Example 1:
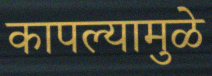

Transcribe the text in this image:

कापल्यामुळे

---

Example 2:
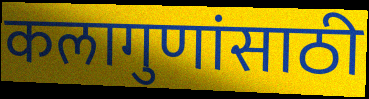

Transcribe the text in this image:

कलागुणांसाठी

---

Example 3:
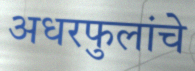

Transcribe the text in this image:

अधरफुलांचे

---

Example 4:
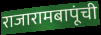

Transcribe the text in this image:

राजारामबापूंची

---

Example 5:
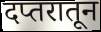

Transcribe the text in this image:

दप्तरातून